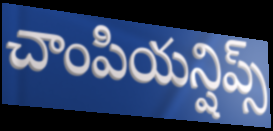
చాంపియన్షిప్స్